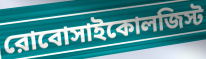
রোবোসাইকোলজিস্ট